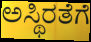
ಅಸ್ಥಿರತೆಗೆ